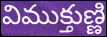
విముక్తుణ్ణి